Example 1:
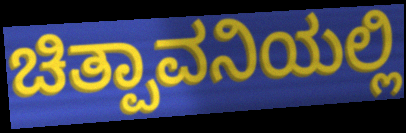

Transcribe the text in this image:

ಚಿತ್ಪಾವನಿಯಲ್ಲಿ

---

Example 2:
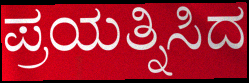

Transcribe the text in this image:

ಪ್ರಯತ್ನಿಸಿದ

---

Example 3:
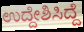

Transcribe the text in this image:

ಉದ್ದೇಶಿಸಿದ್ದೆ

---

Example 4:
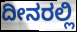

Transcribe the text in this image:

ದೀನರಲ್ಲಿ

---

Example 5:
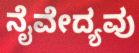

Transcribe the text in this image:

ನೈವೇದ್ಯವು